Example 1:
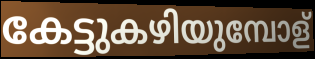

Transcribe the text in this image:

കേട്ടുകഴിയുമ്പോള്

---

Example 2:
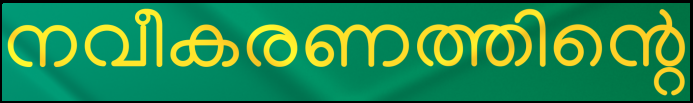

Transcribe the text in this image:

നവീകരണത്തിന്റെ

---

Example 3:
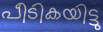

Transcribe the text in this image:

പീടികയിട്ടു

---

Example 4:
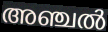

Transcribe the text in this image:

അഞ്ചൽ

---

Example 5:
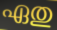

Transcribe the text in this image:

ഏതു